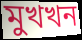
মুখখন